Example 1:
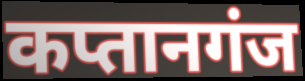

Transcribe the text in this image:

कप्तानगंज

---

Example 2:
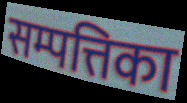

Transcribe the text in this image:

सम्पत्तिका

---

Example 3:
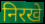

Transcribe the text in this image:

निरखे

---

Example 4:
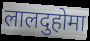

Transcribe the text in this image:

लालदुहोमा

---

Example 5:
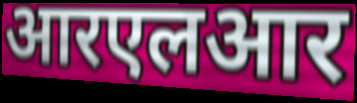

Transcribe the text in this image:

आरएलआर